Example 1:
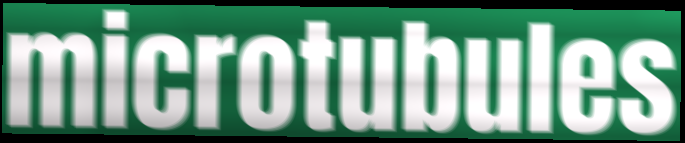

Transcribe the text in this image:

microtubules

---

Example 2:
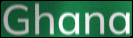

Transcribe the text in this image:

Ghana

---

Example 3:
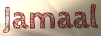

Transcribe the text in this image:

Jamaal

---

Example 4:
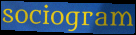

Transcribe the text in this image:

sociogram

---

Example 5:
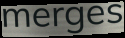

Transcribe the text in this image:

merges